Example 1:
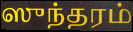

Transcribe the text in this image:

ஸுந்தரம்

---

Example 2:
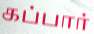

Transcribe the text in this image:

கப்பார்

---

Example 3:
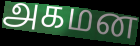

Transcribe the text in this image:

அகமன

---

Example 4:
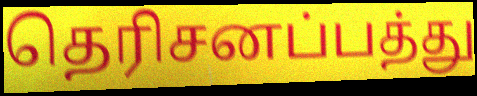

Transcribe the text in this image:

தெரிசனப்பத்து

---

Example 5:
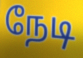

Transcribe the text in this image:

நேடி